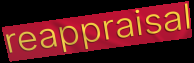
reappraisal